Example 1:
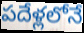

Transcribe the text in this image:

పదేళ్లలోనే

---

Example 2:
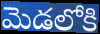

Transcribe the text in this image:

మెడలోకి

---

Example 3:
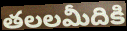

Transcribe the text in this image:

తలలమీదికి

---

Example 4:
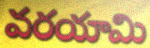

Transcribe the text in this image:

వరయామి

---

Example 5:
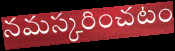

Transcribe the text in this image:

నమస్కరించటం